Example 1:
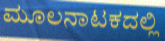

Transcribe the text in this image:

ಮೂಲನಾಟಕದಲ್ಲಿ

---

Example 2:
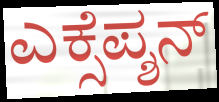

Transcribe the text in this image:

ಎಕ್ಸೆಪ್ಶನ್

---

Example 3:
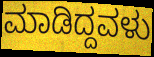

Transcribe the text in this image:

ಮಾಡಿದ್ದವಳು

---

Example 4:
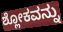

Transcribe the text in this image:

ಶ್ಲೋಕವನ್ನು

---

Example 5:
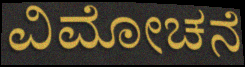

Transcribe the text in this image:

ವಿಮೋಚನೆ